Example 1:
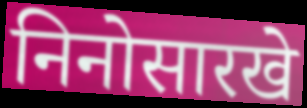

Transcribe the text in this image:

निनोसारखे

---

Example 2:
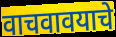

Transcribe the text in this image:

वाचवावयाचे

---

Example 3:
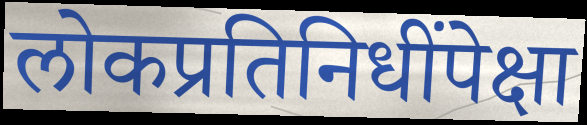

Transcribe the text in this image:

लोकप्रतिनिधींपेक्षा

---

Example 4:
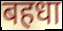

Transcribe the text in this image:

बहधा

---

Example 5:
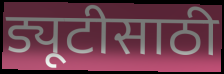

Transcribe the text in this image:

ड्यूटीसाठी